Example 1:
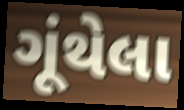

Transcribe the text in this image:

ગૂંથેલા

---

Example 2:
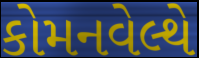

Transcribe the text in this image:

કોમનવેલ્થે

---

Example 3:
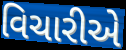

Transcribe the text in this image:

વિચારીએ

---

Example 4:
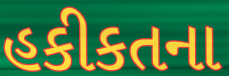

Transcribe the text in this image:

હકીકતના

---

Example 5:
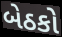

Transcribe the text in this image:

બેઠકો